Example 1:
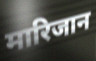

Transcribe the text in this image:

मारिजान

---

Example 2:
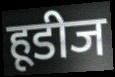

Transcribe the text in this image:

हूडीज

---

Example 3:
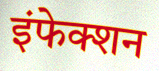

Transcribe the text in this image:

इंफेक्शन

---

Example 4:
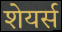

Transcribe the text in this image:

शेयर्स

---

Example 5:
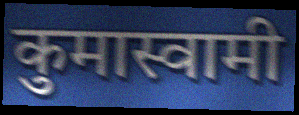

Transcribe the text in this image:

कुमास्वामी